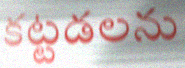
కట్టడలను